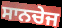
ਸਾਨਚੇਜ